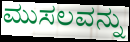
ಮುಸಲವನ್ನು